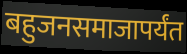
बहुजनसमाजापर्यंत